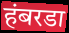
हंबरडा